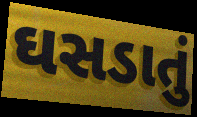
ઘસડાતું